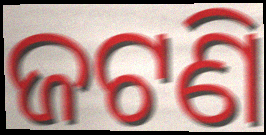
ଜଟଣି